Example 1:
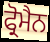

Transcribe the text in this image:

ਫ੍ਰੋਮੈਨ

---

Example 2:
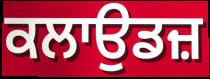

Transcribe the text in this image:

ਕਲਾਉਡਜ਼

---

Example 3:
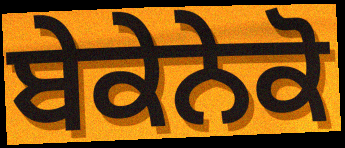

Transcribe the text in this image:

ਬੇਕੇਨੇਕੋ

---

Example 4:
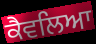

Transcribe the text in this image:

ਕੈਵਲਿਆ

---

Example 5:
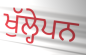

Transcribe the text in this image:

ਖੁੱਲ੍ਹੇਪਨ